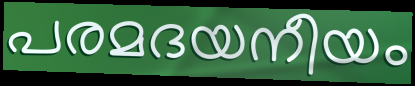
പരമദയനീയം